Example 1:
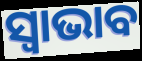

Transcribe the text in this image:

ସ୍ୱାଭାବ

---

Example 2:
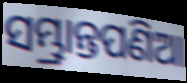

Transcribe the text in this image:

ସମ୍ଭ୍ରାନ୍ତପଣିଆ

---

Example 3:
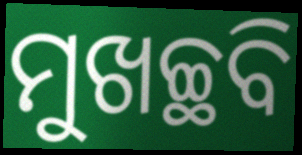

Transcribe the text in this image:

ମୁଖଚ୍ଛବି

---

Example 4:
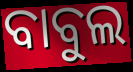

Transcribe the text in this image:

ବାବୁଲ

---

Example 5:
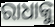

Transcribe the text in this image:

ରାଧାକୁ